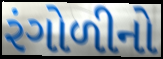
રંગોળીનો